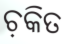
ଚ଼କିତ